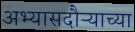
अभ्यासदौऱ्याच्या